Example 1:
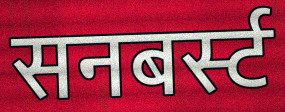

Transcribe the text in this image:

सनबर्स्ट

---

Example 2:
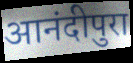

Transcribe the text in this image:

आनंदीपुरा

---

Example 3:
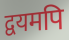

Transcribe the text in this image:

द्वयमपि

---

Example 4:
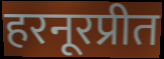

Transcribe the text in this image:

हरनूरप्रीत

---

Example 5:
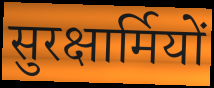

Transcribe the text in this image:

सुरक्षार्मियों